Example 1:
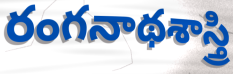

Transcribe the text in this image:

రంగనాథశాస్త్రి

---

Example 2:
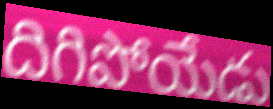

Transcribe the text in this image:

దిగిపోయేడు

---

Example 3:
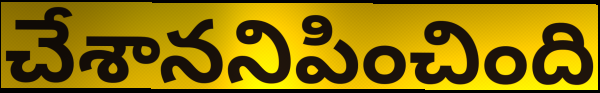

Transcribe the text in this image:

చేశాననిపించింది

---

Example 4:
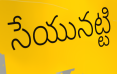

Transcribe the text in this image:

సేయునట్టి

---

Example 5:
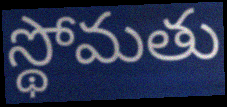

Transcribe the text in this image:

స్థోమతు